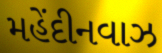
મહેંદીનવાઝ